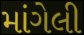
માંગેલી